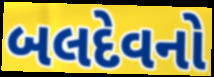
બલદેવનો